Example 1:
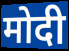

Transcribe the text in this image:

मोदी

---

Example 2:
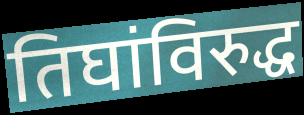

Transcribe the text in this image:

तिघांविरुद्ध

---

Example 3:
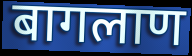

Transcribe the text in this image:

बागलाण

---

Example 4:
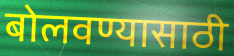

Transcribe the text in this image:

बोलवण्यासाठी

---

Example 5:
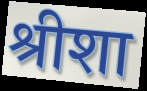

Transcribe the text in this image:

श्रीशा